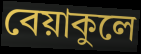
বেয়াকুলে